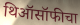
थिऑसॉफीचा